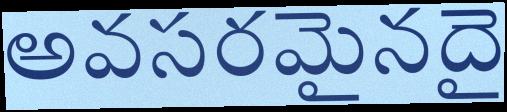
అవసరమైనదై